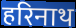
हरिनाथ